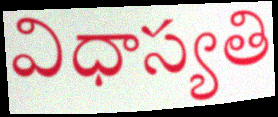
విధాస్యతి